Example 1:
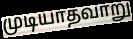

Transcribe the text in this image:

முடியாதவாறு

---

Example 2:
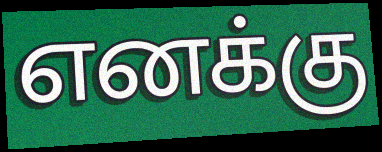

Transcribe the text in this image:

எனக்கு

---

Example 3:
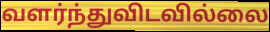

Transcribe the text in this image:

வளர்ந்துவிடவில்லை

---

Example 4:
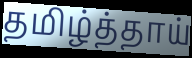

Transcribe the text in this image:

தமிழ்த்தாய்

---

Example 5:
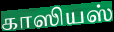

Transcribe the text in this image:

காஸியஸ்